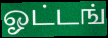
ஓட்டங்